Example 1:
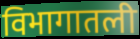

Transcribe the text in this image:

विभागातली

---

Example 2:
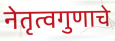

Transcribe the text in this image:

नेतृत्वगुणाचे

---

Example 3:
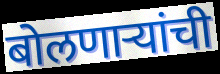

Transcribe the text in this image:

बोलणाऱ्यांची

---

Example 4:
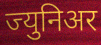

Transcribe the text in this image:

ज्युनिअर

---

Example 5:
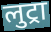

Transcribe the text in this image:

लुट्रा